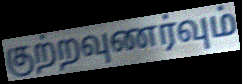
குற்றவுணர்வும்